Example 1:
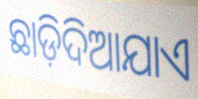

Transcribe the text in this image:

ଛାଡ଼ିଦିଆଯାଏ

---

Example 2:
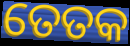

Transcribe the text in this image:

ତେତକ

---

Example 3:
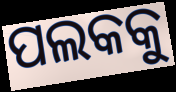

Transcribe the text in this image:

ପଲକକୁ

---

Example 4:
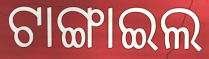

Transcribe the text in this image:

ଟାଙ୍ଗାଇଲ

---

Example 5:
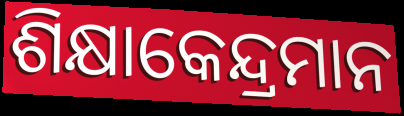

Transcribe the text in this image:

ଶିକ୍ଷାକେନ୍ଦ୍ରମାନ